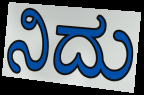
ನಿದು